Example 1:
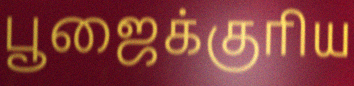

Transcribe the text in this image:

பூஜைக்குரிய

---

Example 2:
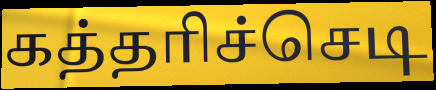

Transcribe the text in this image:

கத்தரிச்செடி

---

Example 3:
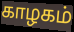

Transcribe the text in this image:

காழகம்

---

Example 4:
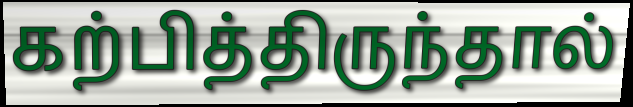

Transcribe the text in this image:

கற்பித்திருந்தால்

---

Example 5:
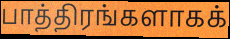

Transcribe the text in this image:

பாத்திரங்களாகக்